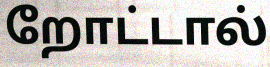
றோட்டால்